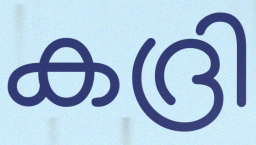
കദ്രി